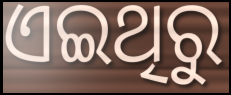
ଏଇଥିରୁ